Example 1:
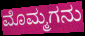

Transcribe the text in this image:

ಮೊಮ್ಮಗನು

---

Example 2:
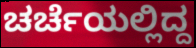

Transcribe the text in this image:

ಚರ್ಚೆಯಲ್ಲಿದ್ದ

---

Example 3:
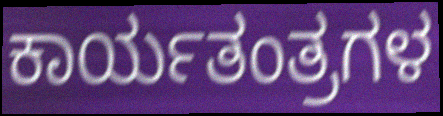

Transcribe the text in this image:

ಕಾರ್ಯತಂತ್ರಗಳ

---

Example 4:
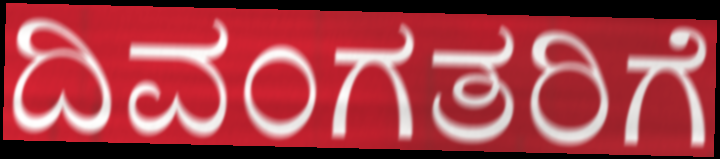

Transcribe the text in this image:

ದಿವಂಗತರಿಗೆ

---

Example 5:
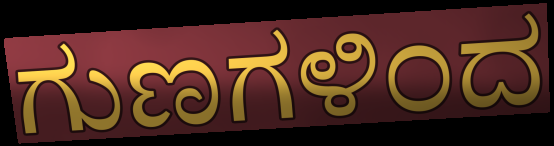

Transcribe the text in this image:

ಗುಣಗಳಿಂದ